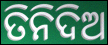
ତିନିଦିଅ